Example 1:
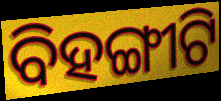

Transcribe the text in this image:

ବିହଙ୍ଗୀଟି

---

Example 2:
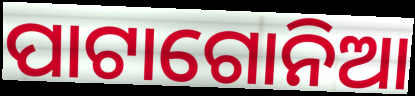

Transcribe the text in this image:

ପାଟାଗୋନିଆ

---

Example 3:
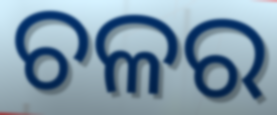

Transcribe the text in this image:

ଚଳର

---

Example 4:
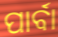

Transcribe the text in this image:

ପାର୍ବା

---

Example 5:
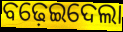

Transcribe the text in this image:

ବଢ଼େଇଦେଲା